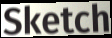
Sketch